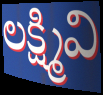
లక్ష్మివి